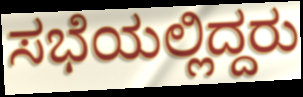
ಸಭೆಯಲ್ಲಿದ್ದರು